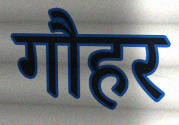
गौहर